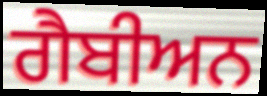
ਗੈਬੀਅਨ